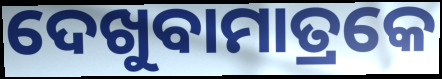
ଦେଖୁବାମାତ୍ରକେ